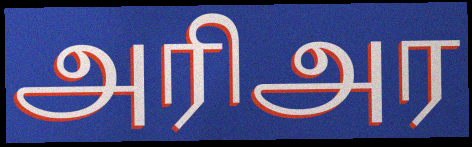
அரிஅர